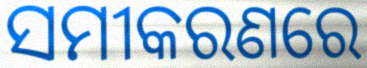
ସମୀକରଣରେ